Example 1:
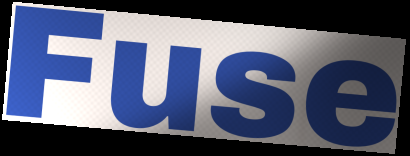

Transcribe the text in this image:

Fuse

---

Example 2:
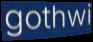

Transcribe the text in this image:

gothwi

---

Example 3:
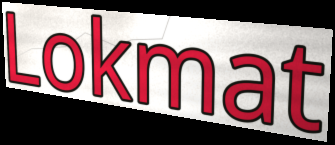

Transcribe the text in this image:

Lokmat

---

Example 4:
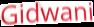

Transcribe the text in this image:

Gidwani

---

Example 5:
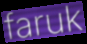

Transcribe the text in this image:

faruk